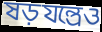
ষড়যন্ত্রেও